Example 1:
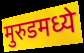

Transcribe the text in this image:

मुरुडमध्ये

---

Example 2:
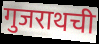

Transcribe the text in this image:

गुजराथची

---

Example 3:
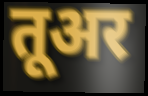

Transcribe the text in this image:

तूअर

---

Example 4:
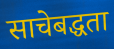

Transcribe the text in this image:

साचेबद्धता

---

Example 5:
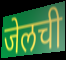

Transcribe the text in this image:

जेलची